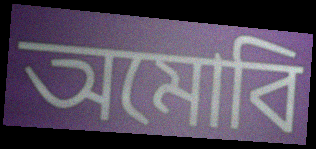
অমোবি